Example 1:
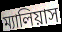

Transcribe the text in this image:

ম্যালিয়াস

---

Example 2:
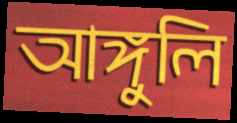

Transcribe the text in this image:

আঙ্গুলি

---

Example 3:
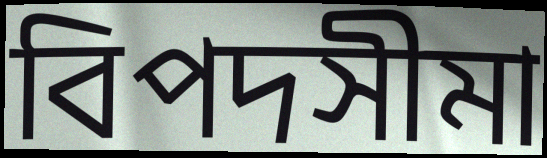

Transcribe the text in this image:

বিপদসীমা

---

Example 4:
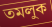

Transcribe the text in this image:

তমলুক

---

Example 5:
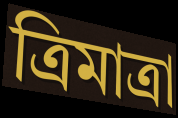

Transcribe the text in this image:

ত্রিমাত্রা